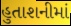
હુતાશનીમાં